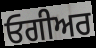
ਓਗੀਅਰ